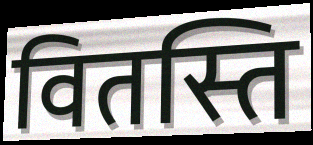
वितस्ति